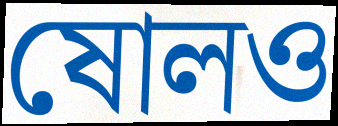
ষোলও